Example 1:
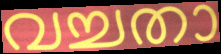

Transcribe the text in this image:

വച്ചതാ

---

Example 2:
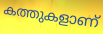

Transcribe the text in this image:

കത്തുകളാണ്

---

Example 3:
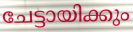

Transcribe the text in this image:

ചേട്ടായിക്കും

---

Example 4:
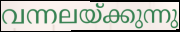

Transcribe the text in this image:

വന്നലയ്ക്കുന്നു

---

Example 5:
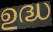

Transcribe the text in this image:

ഉദ്ധ